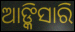
ଆଙ୍କିସାରି